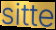
sitte